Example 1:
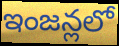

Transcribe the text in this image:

ఇంజన్లలో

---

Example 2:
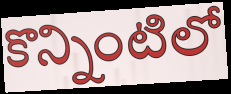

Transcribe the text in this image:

కొన్నింటిలో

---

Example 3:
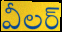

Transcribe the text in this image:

వీలర్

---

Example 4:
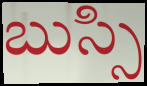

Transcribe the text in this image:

బుస్సి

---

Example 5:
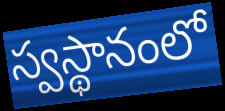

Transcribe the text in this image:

స్వస్థానంలో